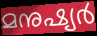
മനുഷ്യർ